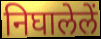
निघालेलें